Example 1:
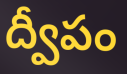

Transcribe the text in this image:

ద్వీపం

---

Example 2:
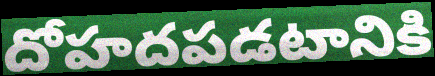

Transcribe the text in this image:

దోహదపడటానికి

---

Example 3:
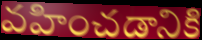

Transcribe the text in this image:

వహించడానికి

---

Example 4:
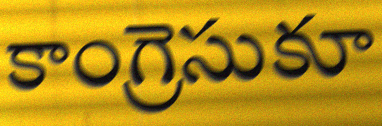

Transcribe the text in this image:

కాంగ్రెసుకూ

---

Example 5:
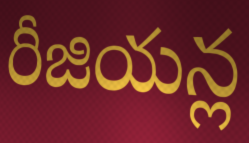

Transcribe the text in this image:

రీజియన్ల